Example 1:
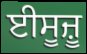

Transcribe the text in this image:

ਈਸੂਜ਼ੂ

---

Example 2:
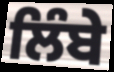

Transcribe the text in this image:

ਲਿੰਬੇ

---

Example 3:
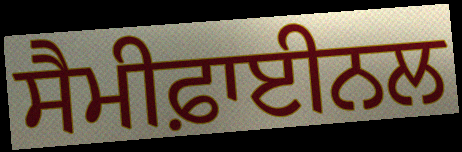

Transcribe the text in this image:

ਸੈਮੀਫ਼ਾਈਨਲ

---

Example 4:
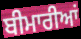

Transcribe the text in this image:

ਬੀਮਾਰੀਆਂ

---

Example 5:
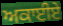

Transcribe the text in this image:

ਅਕਾਈਏ